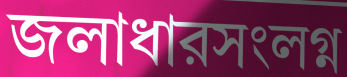
জলাধারসংলগ্ন